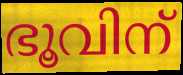
ഭൂവിന്